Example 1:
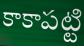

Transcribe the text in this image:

కాకాపట్టి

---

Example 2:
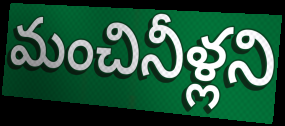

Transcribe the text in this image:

మంచినీళ్లని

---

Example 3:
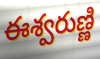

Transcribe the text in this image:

ఈశ్వరుణ్ణి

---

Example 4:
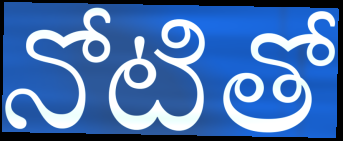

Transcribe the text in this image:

నోటితో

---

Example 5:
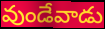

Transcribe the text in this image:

వుండేవాడు